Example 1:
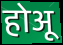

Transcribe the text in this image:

होअू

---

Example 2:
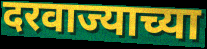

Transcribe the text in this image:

दरवाज्याच्या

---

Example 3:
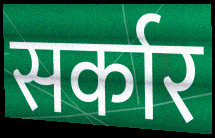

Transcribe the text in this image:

सर्कार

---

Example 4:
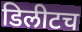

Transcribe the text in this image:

डिलीटच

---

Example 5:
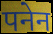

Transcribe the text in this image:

पनेन